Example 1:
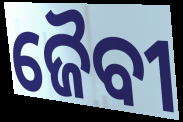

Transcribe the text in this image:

ଜୈବୀ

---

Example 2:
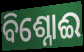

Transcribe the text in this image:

ବିଶ୍ନୋଈ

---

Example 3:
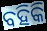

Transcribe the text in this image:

ବହିକି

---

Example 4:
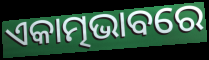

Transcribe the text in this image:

ଏକାତ୍ମଭାବରେ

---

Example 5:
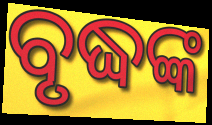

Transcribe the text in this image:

ବୃଦ୍ଧଙ୍କ